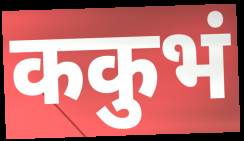
ककुभं